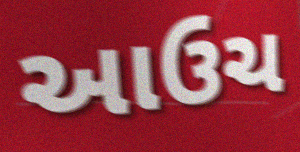
આઉચ